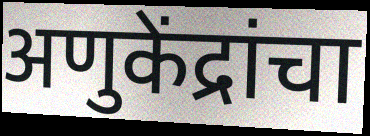
अणुकेंद्रांचा